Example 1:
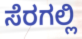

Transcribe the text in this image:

ಸೆರಗಲ್ಲಿ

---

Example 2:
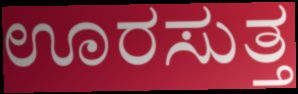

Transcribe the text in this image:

ಊರಸುತ್ತ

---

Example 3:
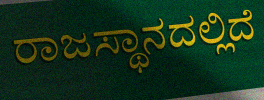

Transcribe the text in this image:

ರಾಜಸ್ಥಾನದಲ್ಲಿದೆ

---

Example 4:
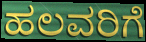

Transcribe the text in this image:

ಹಲವರಿಗೆ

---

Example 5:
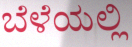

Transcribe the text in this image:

ಬೆಳೆಯಲ್ಲಿ